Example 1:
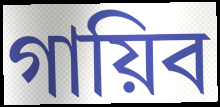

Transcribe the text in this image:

গায়িব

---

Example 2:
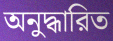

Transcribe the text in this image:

অনুদ্ধারিত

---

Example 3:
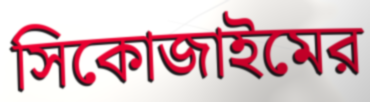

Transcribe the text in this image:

সিকোজাইমের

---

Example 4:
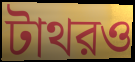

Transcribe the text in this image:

টাথরও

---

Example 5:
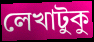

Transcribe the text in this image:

লেখাটুকু